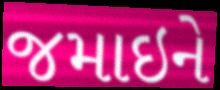
જમાઇને